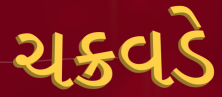
ચક્રવડે